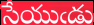
సేయుఁడు